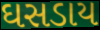
ઘસડાય